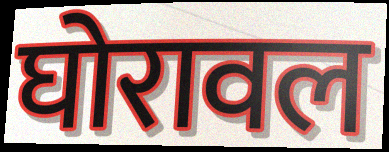
घोरावल